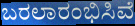
ಬರಲಾರಂಭಿಸಿವೆ